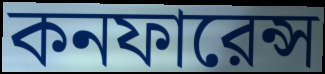
কনফারেন্স